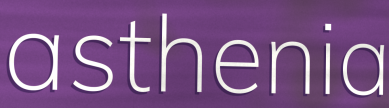
asthenia